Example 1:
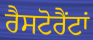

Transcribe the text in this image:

ਰੈਸਟੋਰੈਂਟਾਂ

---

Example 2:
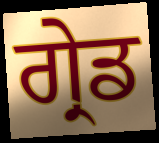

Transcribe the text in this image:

ਗ੍ਰੇਡ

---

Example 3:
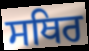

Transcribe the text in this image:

ਸਥਿਰ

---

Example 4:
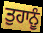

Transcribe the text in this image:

ਤੁਹਾਨੂੰ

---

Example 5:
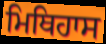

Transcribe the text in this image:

ਮਿਥਿਹਾਸ